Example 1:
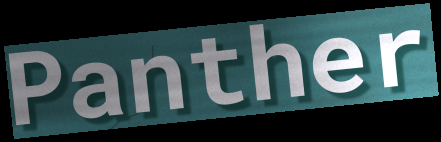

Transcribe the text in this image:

Panther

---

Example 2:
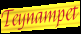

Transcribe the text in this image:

Teynampet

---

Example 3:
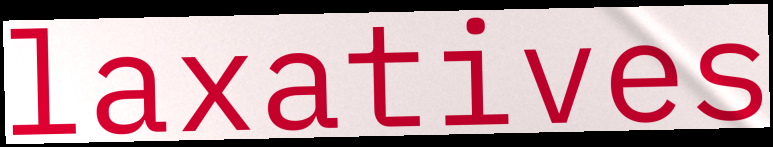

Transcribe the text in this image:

laxatives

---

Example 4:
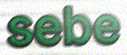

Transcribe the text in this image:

sebe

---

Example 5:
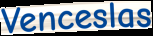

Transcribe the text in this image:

Venceslas